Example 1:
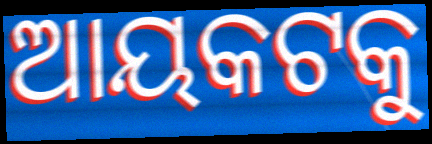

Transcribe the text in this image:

ଆୟକଟକୁ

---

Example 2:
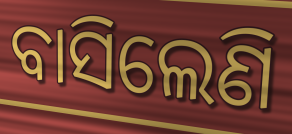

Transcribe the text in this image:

ବାସିଲେଣି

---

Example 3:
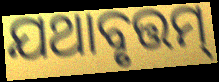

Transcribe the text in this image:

ଯଥାବୃତ୍ତମ୍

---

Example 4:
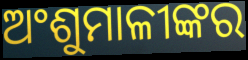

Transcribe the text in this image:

ଅଂଶୁମାଳୀଙ୍କର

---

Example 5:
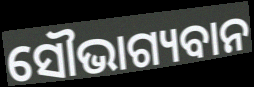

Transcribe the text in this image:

ସୌଭାଗ୍ୟବାନ